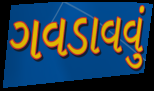
ગવડાવવું